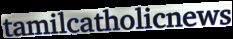
tamilcatholicnews